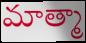
మాత్మా